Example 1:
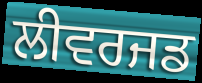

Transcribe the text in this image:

ਲੀਵਰਜਡ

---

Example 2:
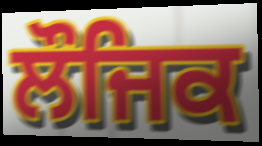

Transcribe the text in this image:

ਲੌਜਿਕ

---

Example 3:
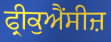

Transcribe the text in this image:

ਫ੍ਰੀਕੁਐਂਸੀਜ਼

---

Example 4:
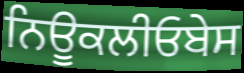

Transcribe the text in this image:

ਨਿਊਕਲੀਓਬੇਸ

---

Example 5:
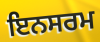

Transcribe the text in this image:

ਇਨਸਰਮ